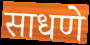
साधणे